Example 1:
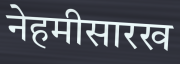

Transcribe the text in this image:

नेहमीसारख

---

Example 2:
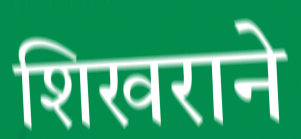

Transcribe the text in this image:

शिखराने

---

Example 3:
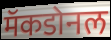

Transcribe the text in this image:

मॅकडोनल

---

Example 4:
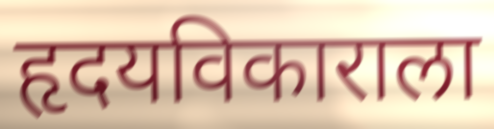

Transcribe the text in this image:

हृदयविकाराला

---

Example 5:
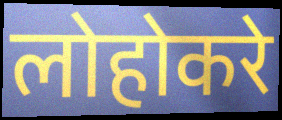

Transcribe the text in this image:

लोहोकरे